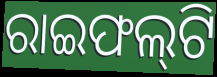
ରାଇଫଲ୍‍ଟି